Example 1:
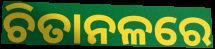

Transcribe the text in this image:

ଚିତାନଳରେ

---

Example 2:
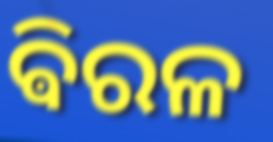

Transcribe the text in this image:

ଵିରଳ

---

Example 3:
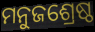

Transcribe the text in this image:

ମନୁଜଶ୍ରେଷ୍ଠ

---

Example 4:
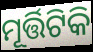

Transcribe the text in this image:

ମୂର୍ତ୍ତିଟିକି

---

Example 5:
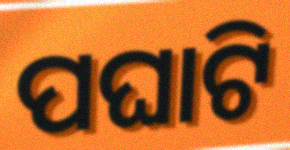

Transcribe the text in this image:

ପଘାଟି